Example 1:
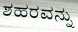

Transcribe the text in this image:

ಶಹರವನ್ನು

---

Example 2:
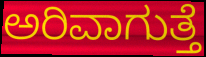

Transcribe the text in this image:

ಅರಿವಾಗುತ್ತೆ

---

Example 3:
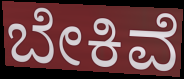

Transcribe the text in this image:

ಬೇಕಿವೆ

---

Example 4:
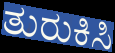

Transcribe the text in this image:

ತುರುಕಿಸಿ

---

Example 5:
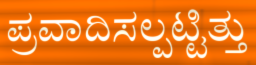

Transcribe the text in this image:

ಪ್ರವಾದಿಸಲ್ಪಟ್ಟಿತ್ತು